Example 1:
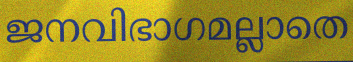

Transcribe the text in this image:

ജനവിഭാഗമല്ലാതെ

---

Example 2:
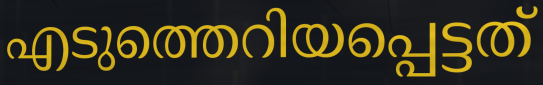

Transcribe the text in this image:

എടുത്തെറിയപ്പെട്ടത്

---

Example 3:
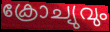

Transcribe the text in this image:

ക്രോച്യുവും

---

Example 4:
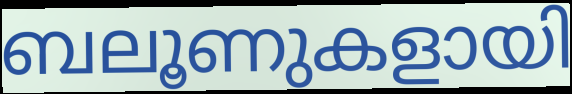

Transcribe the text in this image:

ബലൂണുകളായി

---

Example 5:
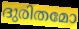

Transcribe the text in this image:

ദുരിതമോ